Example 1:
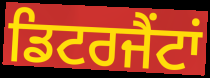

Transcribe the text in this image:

ਡਿਟਰਜੈਂਟਾਂ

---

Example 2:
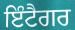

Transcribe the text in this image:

ਇੰਟੈਗਰ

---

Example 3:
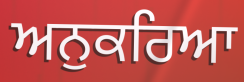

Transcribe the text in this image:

ਅਨੁਕਰਿਆ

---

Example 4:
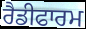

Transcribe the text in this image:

ਰੈਡੀਫਾਰਮ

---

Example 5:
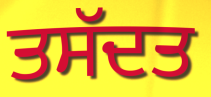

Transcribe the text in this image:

ਤਸੱਦਤ